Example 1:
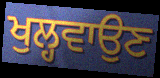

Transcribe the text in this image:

ਖੁਲ੍ਹਵਾਉਣ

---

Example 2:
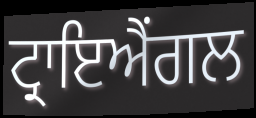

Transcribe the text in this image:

ਟ੍ਰਾਇਐਂਗਲ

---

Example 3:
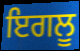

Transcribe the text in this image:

ਇਗਲੂ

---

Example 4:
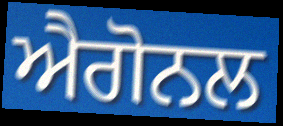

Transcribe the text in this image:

ਐਗੋਨਲ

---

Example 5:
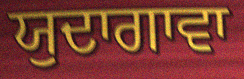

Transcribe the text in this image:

ਯੁਦਾਗਾਵਾ